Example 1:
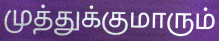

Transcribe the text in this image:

முத்துக்குமாரும்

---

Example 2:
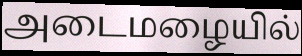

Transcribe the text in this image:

அடைமழையில்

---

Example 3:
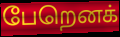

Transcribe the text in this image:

பேறெனக்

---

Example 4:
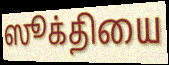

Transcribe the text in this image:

ஸூக்தியை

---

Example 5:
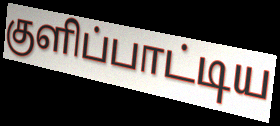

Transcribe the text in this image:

குளிப்பாட்டிய